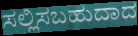
ಸಲ್ಲಿಸಬಹುದಾದ